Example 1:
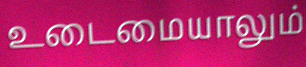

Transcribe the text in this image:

உடைமையாலும்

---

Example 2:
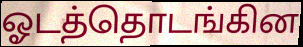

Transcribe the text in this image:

ஓடத்தொடங்கின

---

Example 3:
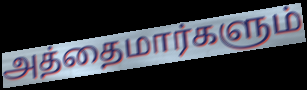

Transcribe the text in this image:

அத்தைமார்களும்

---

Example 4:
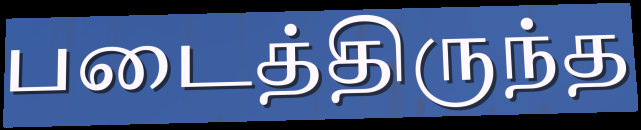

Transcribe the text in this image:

படைத்திருந்த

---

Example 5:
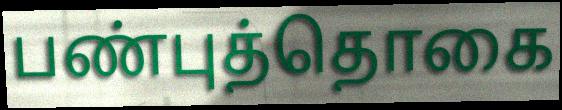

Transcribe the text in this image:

பண்புத்தொகை